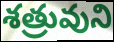
శత్రువుని